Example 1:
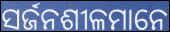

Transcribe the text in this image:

ସର୍ଜନଶୀଳମାନେ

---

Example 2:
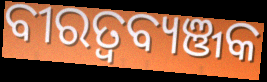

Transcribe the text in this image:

ବୀରତ୍ବବ୍ୟଞ୍ଜକ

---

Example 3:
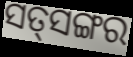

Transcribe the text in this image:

ସତ୍‌ସଙ୍ଗର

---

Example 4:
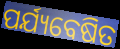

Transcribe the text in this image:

ପର୍ଯ୍ୟବେଷିତ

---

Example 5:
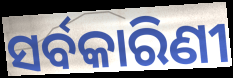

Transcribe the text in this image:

ସର୍ବକାରିଣୀ